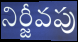
నిర్జీవపు